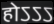
होऽऽऽ